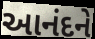
આનંદને